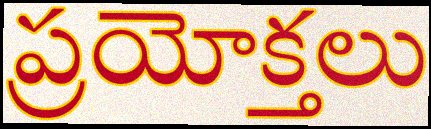
ప్రయోక్తలు